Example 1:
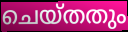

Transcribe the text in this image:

ചെയ്തതും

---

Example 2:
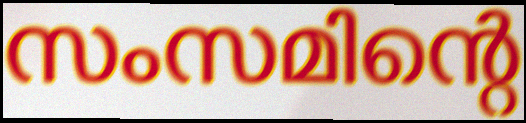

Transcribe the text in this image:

സംസമിന്റെ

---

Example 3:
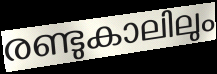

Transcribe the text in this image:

രണ്ടുകാലിലും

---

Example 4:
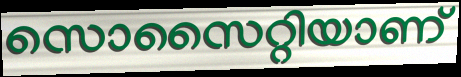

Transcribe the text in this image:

സൊസൈറ്റിയാണ്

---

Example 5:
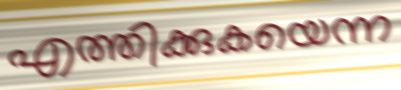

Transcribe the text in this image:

എത്തിക്കുകയെന്ന